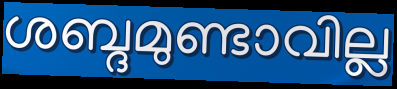
ശബ്ദമുണ്ടാവില്ല